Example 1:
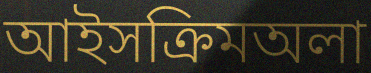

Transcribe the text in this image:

আইসক্রিমঅলা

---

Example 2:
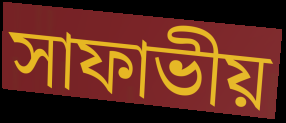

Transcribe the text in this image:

সাফাভীয়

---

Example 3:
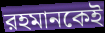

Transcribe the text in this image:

রহমানকেই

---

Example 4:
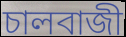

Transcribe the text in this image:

চালবাজী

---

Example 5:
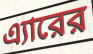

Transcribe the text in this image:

এ্যারের